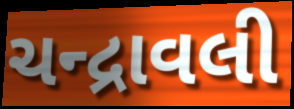
ચન્દ્રાવલી